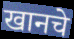
खानचे